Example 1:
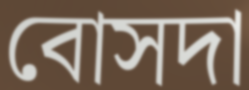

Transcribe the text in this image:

বোসদা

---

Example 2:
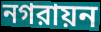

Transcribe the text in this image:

নগরায়ন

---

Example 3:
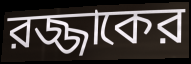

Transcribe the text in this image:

রজ্জাকের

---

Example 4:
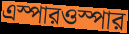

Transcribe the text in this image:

এস্পারওস্পার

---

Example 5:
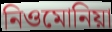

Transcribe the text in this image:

নিওমোনিয়া